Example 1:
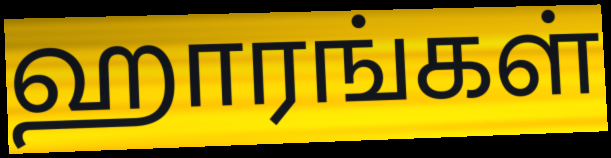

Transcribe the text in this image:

ஹாரங்கள்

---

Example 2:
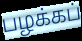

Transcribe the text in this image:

பழக்கப்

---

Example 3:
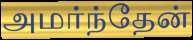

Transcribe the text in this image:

அமர்ந்தேன்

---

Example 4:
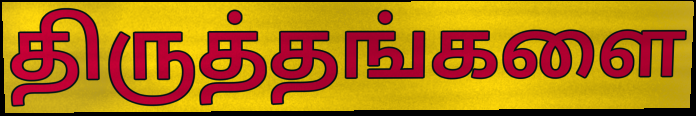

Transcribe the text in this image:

திருத்தங்களை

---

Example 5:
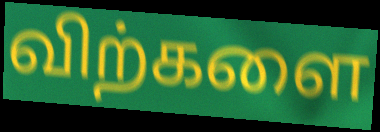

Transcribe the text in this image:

விற்களை